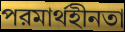
পরমার্থহীনতা